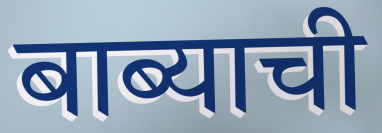
बाब्याची